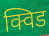
क्विड